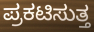
ಪ್ರಕಟಿಸುತ್ತ